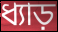
ধ্যাড়